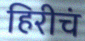
हिरीचं